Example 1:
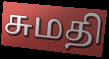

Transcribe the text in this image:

சுமதி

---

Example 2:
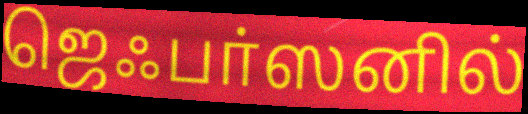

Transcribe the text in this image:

ஜெஃபர்ஸனில்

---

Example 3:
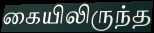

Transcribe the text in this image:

கையிலிருந்த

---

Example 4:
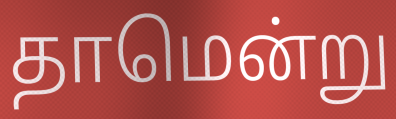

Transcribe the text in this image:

தாமென்று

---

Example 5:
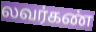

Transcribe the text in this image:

லவர்கண்